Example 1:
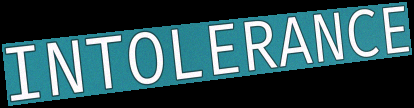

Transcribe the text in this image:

INTOLERANCE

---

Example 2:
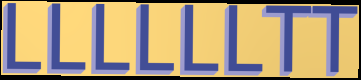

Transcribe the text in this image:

LLLLLLTT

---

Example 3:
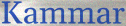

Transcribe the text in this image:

Kammar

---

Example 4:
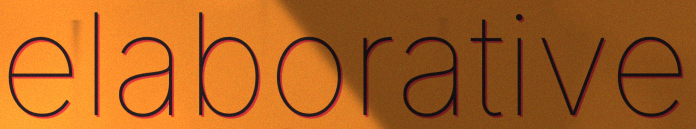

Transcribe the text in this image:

elaborative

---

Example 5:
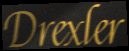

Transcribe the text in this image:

Drexler